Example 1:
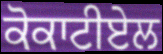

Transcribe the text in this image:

ਕੋਕਾਟੀਏਲ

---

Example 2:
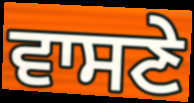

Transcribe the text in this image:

ਵਾਸਣੇ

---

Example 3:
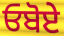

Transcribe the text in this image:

ਓਬੋਏ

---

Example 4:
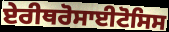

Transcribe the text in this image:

ਏਰੀਥਰੋਸਾਈਟੋਸਿਸ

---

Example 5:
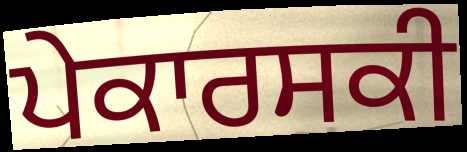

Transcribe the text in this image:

ਪੇਕਾਰਸਕੀ